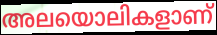
അലയൊലികളാണ്